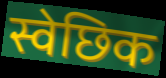
स्वेछिक